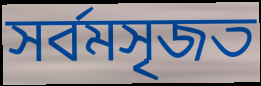
সর্বমসৃজত